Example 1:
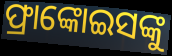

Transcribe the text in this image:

ଫ୍ରାଙ୍କୋଇସଙ୍କୁ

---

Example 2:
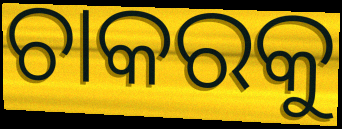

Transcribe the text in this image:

ଚାକରକୁ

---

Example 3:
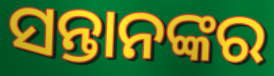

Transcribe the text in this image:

ସନ୍ତାନଙ୍କର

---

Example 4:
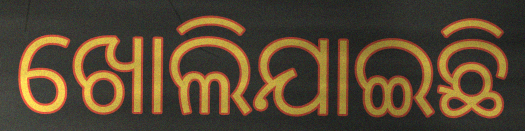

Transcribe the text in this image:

ଖୋଲିଯାଇଛି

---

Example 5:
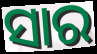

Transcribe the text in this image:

ସାର